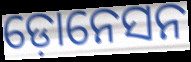
ଡ଼ୋନେସନ